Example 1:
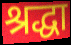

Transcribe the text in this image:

श्रद्धा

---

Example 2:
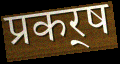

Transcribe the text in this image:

प्रकर्ष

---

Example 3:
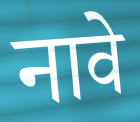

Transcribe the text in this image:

नावे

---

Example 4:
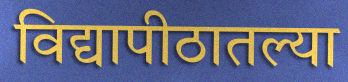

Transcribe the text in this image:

विद्यापीठातल्या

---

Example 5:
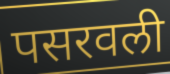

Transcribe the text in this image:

पसरवली